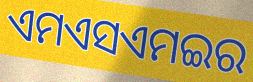
ଏମଏସଏମଇର